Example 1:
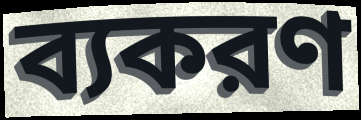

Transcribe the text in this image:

ব্যকরণ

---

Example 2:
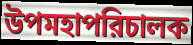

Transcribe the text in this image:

উপমহাপরিচালক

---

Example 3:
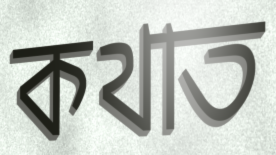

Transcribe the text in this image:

কথাত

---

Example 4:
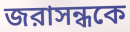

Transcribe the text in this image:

জরাসন্ধকে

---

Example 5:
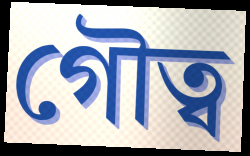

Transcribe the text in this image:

গৌত্ব